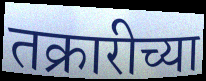
तक्रारीच्या